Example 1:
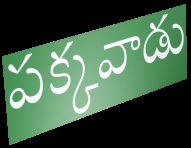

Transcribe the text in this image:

పక్కవాడు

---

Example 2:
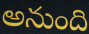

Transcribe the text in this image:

అనుంది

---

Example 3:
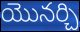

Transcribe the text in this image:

యొనర్చి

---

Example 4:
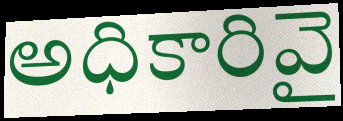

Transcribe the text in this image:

అధికారివై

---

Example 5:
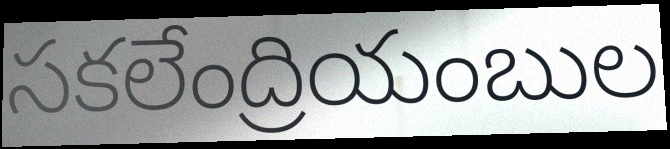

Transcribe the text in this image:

సకలేంద్రియంబుల